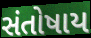
સંતોષાય